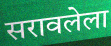
सरावलेला